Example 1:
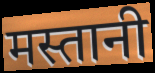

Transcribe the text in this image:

मस्‍तानी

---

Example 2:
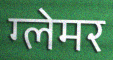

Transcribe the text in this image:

ग्लेमर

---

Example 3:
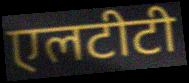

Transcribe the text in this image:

एलटीटी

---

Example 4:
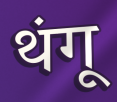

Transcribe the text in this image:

थंगू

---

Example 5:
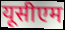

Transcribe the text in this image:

यूसीएम